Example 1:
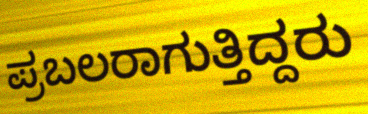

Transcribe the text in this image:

ಪ್ರಬಲರಾಗುತ್ತಿದ್ದರು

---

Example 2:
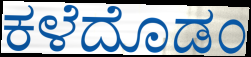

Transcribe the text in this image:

ಕಳೆದೊಡಂ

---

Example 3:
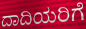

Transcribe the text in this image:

ದಾದಿಯರಿಗೆ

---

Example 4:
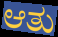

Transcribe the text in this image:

ಆತು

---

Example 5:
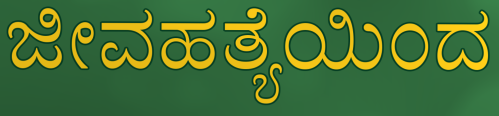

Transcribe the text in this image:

ಜೀವಹತ್ಯೆಯಿಂದ